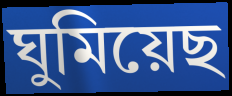
ঘুমিয়েছ